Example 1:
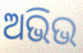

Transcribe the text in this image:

ଅଭିଭ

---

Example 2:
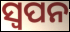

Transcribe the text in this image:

ସ୍ବପନ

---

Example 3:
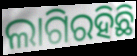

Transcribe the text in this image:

ଲାଗିରହିଛି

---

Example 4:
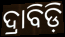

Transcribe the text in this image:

ଦ୍ରାବିଡ଼ି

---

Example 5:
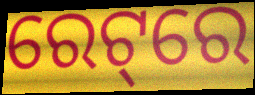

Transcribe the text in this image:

ରେଟ୍‌ରେ